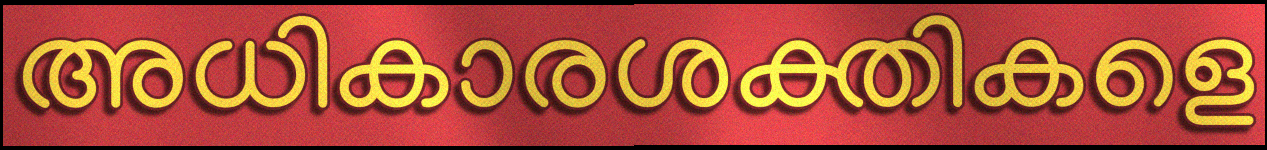
അധികാരശക്തികളെ